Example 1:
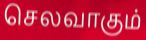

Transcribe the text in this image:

செலவாகும்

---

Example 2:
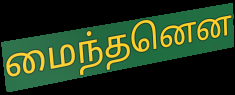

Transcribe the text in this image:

மைந்தனென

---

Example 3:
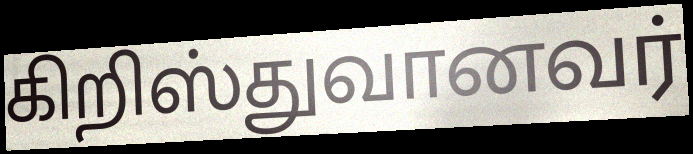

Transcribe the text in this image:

கிறிஸ்துவானவர்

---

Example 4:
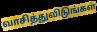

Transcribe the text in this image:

வாசித்துவிடுங்கள்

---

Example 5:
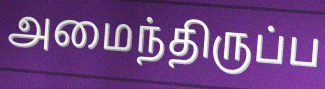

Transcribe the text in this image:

அமைந்திருப்ப